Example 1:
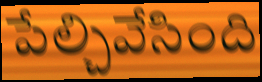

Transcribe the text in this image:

పేల్చివేసింది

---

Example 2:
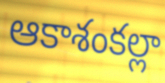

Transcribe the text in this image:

ఆకాశంకల్లా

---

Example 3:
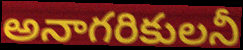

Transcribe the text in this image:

అనాగరికులనీ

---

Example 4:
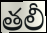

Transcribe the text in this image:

తలీ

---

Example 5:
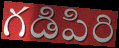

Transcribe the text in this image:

గడిపిరి